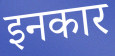
इनकार